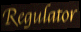
Regulator